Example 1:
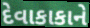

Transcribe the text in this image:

દેવાકાકાને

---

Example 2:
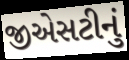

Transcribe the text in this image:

જીએસટીનું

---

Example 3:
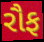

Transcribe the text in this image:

રૌફ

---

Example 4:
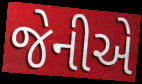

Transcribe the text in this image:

જેનીએ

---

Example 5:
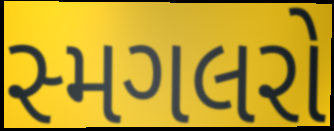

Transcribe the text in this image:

સ્મગલરો